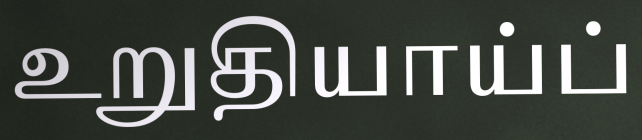
உறுதியாய்ப்